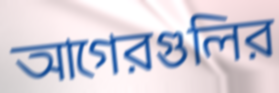
আগেরগুলির